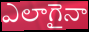
ఎలాగైనా